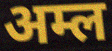
अम्ल